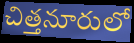
చిత్తనూరులో